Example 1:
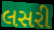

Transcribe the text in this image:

લસરી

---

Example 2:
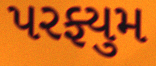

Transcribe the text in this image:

પરફ્યુમ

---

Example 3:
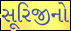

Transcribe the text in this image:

સૂરિજીનો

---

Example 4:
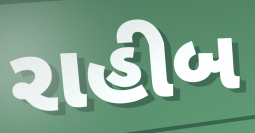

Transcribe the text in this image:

રાહીબ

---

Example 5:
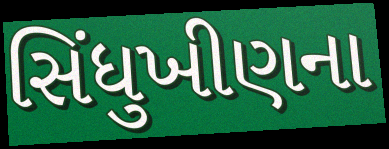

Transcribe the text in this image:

સિંધુખીણના